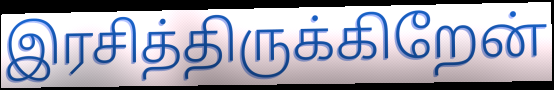
இரசித்திருக்கிறேன்